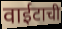
वाईटाची